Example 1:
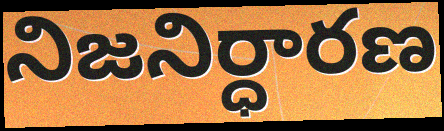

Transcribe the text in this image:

నిజనిర్ధారణ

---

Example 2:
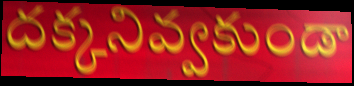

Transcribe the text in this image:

దక్కనివ్వకుండా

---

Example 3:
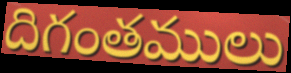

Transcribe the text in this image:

దిగంతములు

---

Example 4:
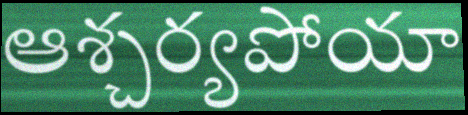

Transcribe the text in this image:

ఆశ్చర్యపోయా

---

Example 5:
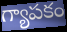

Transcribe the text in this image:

గ్యాపకం